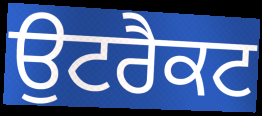
ਉਟਰੈਕਟ